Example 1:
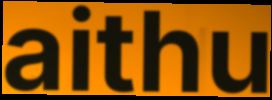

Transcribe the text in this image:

aithu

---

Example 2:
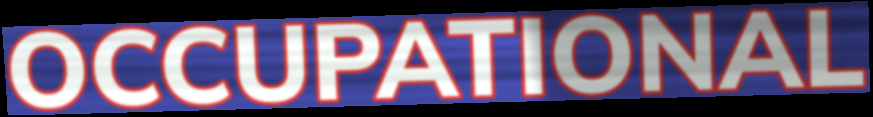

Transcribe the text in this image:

OCCUPATIONAL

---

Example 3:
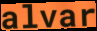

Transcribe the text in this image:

alvar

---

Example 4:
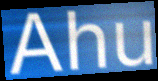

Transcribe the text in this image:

Ahu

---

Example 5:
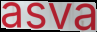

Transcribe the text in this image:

asva